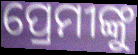
ପ୍ରେମୀଙ୍କୁ